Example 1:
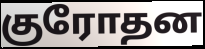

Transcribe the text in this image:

குரோதன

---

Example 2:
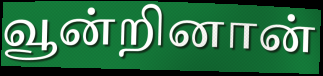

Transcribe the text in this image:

வூன்றினான்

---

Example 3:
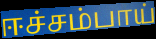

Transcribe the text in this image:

ஈச்சம்பாய்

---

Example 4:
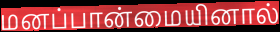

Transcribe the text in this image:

மனப்பான்மையினால்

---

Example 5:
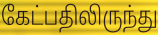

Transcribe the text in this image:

கேட்பதிலிருந்து